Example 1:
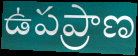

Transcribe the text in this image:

ఉపప్రాణ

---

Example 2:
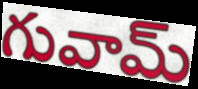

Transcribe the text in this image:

గువామ్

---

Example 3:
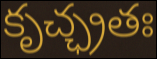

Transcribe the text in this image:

కృచ్ఛ్రతః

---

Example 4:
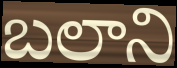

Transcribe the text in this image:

బలాని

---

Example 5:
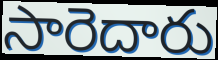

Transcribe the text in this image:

సారెదారు